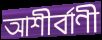
আশীর্বাণী